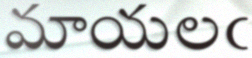
మాయలఁ